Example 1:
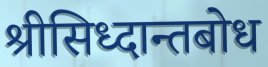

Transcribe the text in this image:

श्रीसिध्दान्तबोध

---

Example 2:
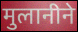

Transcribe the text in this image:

मुलानीने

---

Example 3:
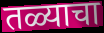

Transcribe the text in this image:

तळ्याचा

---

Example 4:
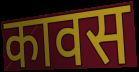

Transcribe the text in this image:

कावस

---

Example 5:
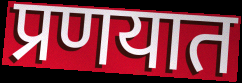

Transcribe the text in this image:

प्रणयात